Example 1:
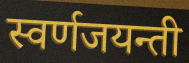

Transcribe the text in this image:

स्वर्णजयन्ती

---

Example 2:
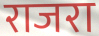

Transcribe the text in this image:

राजरा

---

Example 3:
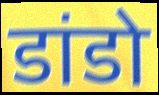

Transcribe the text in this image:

डांडो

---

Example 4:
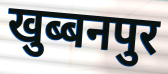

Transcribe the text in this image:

खुब्बनपुर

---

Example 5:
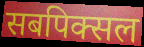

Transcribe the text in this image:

सबपिक्सल